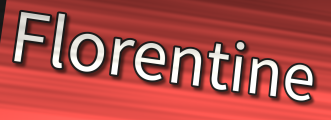
Florentine